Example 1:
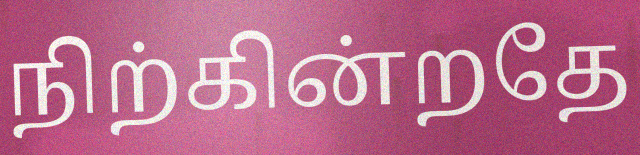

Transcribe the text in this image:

நிற்கின்றதே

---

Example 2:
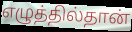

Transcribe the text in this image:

எழுத்தில்தான்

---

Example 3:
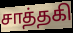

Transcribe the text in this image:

சாத்தகி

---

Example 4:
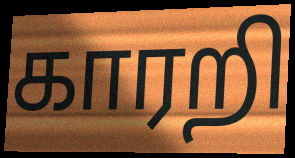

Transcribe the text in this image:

காரறி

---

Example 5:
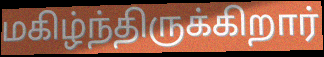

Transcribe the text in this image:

மகிழ்ந்திருக்கிறார்